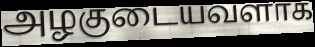
அழகுடையவளாக